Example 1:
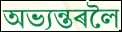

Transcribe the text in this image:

অভ্যন্তৰলৈ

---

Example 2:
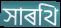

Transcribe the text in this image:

সাৰথি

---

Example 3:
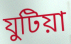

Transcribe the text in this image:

যুটিয়া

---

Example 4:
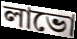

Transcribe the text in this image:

লাভো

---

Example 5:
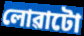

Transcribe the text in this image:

লোৱাটো